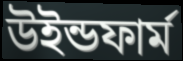
উইন্ডফার্ম